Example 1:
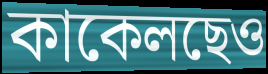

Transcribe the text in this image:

কাকেলছেও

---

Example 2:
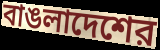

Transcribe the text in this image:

বাঙলাদেশের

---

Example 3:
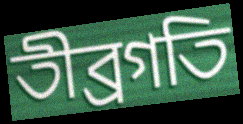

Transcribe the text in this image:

তীব্রগতি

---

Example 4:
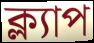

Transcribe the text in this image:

ক্ল্যাপ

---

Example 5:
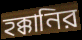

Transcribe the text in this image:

হক্কানির